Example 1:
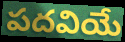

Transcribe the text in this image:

పదవియే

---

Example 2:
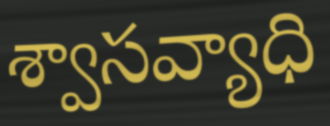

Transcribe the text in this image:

శ్వాసవ్యాధి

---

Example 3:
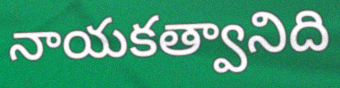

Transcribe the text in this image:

నాయకత్వానిది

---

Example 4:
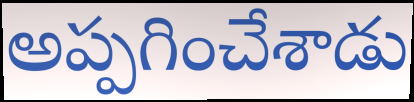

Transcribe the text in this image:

అప్పగించేశాడు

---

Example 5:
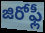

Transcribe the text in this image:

జిరోఫ్లీ